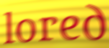
lored